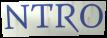
NTRO